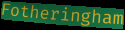
Fotheringham